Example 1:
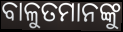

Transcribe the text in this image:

ବାଳୁତମାନଙ୍କୁ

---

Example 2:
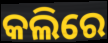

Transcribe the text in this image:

କଲିରେ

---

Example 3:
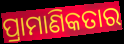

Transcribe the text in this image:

ପ୍ରାମାଣିକତାର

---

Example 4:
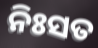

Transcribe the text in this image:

ନିଃସତ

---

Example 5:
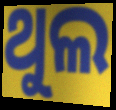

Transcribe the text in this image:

ଥୁଲ